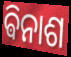
ଵିନାଶ